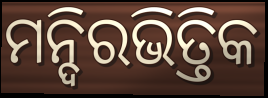
ମନ୍ଦିରଭିତ୍ତିକ